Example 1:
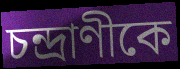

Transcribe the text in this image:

চন্দ্রাণীকে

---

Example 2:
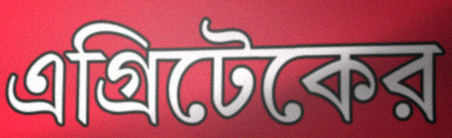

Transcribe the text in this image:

এগ্রিটেকের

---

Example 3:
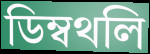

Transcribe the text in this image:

ডিম্বথলি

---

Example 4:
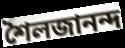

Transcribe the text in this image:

শৈলজানন্দ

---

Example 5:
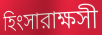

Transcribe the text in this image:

হিংসারাক্ষসী